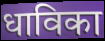
धाविका